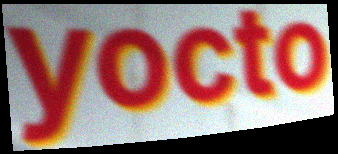
yocto